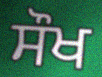
ਸੌਖ